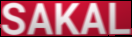
SAKAL